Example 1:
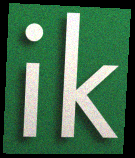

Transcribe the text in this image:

ik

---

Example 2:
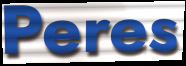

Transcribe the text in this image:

Peres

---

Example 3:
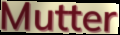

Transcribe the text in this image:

Mutter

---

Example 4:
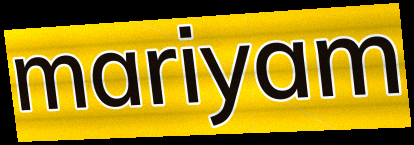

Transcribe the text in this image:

mariyam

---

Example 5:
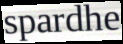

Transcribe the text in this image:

spardhe